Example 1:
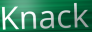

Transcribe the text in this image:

Knack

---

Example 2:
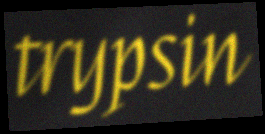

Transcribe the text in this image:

trypsin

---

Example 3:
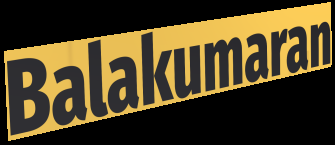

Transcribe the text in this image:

Balakumaran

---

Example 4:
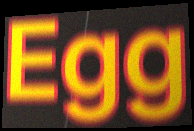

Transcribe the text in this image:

Egg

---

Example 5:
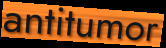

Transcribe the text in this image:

antitumor